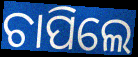
ଚାପିଲେ